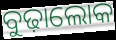
ବୁଢ଼ାଲୋକ